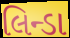
લિન્ડા